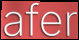
afer